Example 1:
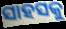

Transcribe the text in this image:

ସାହସକୁ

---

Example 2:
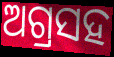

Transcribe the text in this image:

ଅଗ୍ରସହ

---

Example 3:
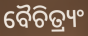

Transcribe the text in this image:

ବୈଚିତ୍ର୍ୟଂ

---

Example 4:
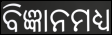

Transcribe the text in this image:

ବିଜ୍ଞାନମଧ୍ୟ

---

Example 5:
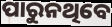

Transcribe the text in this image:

ପାରୁନଥିବେ